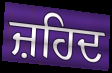
ਜ਼ਹਿਦ